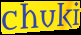
chuki